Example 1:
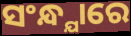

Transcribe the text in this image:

ସଂନ୍ଧ୍ଯାରେ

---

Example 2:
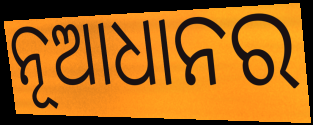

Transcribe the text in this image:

ନୂଆଧାନର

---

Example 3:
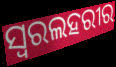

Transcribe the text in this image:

ସ୍ୱରଲହରୀର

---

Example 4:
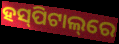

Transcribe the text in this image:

ହସ୍‌ପିଟାଲ୍‌ରେ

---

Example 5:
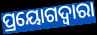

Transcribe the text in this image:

ପ୍ରୟୋଗଦ୍ୱାରା